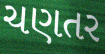
ચણતર